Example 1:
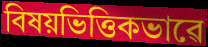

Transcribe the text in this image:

বিষয়ভিত্তিকভাৱে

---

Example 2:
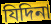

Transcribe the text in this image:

যিদিনা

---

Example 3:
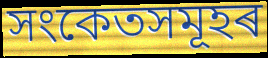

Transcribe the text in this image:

সংকেতসমূহৰ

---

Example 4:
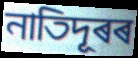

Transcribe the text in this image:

নাতিদূৰৰ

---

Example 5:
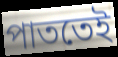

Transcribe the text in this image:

পাততেই